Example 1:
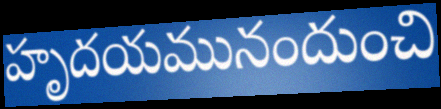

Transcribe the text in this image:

హృదయమునందుంచి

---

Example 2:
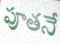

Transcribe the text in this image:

పూతనే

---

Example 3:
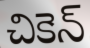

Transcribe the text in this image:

చికెన్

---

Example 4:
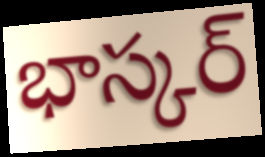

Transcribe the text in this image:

భాస్కర్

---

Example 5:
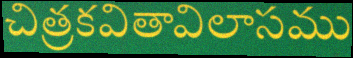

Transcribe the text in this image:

చిత్రకవితావిలాసము